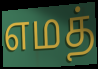
எமத்